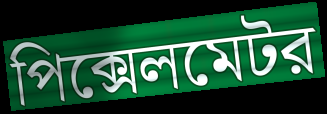
পিক্সেলমেটর